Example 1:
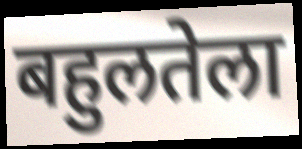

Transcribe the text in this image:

बहुलतेला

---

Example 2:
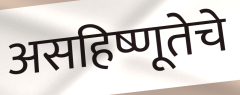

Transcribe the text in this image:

असहिष्णूतेचे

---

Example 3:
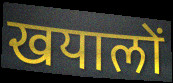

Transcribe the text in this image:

खयालों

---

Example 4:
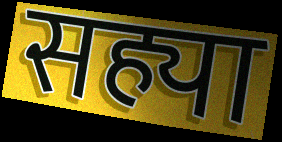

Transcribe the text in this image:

सह्या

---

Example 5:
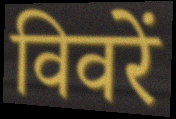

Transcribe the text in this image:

विवरें